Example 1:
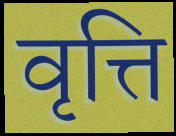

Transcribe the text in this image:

वृत्ति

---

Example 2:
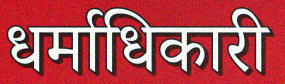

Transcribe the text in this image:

धर्माधिकारी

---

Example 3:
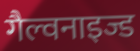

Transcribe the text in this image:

गैल्वनाइज्ड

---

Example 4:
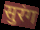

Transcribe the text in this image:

सुरंग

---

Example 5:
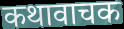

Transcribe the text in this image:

कथावाचक